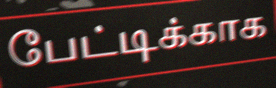
பேட்டிக்காக